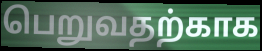
பெறுவதற்காக